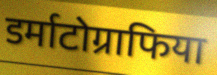
डर्माटोग्राफिया